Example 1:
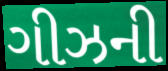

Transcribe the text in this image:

ગીઝની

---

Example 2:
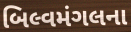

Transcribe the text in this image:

બિલ્વમંગલના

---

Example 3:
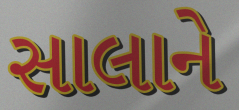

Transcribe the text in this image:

સાલાને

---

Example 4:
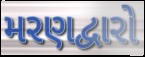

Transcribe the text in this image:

મરણદ્વારો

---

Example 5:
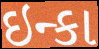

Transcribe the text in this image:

ઇન્કા